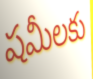
షమీలకు